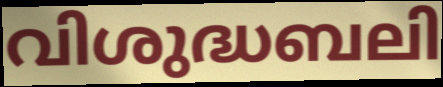
വിശുദ്ധബലി